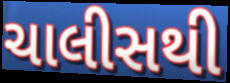
ચાલીસથી